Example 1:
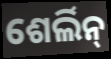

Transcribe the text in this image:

ଶେର୍ଲିନ୍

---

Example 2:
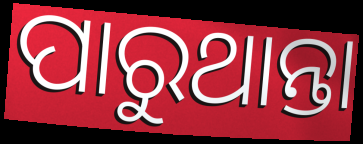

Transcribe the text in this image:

ପାରୁଥାନ୍ତା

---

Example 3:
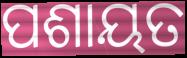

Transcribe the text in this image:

ପଶାୟତ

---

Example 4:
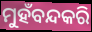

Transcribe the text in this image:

ମୁହଁବନ୍ଦକରି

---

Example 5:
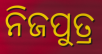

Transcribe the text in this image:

ନିଜପୁତ୍ର